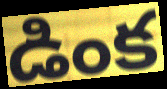
డింక